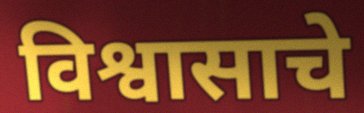
विश्वासाचे